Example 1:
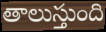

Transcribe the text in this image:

తాలుస్తుంది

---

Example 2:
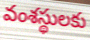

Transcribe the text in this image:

వంశస్థులకు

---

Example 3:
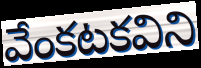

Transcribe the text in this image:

వేంకటకవిని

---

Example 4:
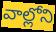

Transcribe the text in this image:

వాల్లోని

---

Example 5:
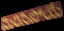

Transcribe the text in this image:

మెరిసిపోయే